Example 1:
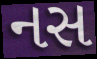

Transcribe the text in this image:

નસ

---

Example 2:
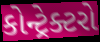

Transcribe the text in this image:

કોન્ટ્રેક્ટરો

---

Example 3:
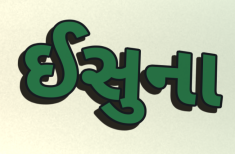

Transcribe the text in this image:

ઈસુના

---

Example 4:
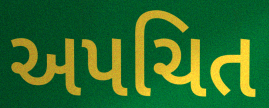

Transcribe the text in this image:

અપચિત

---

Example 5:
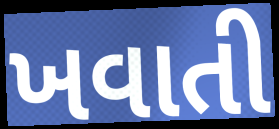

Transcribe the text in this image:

ખવાતી